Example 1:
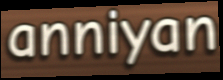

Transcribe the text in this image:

anniyan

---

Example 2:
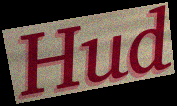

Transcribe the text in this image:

Hud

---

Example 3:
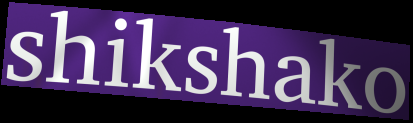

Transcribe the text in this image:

shikshako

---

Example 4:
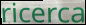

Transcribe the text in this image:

ricerca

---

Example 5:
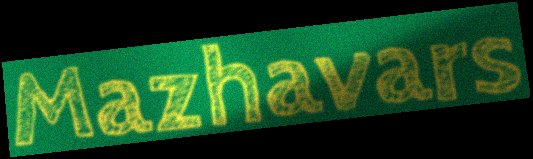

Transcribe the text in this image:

Mazhavars